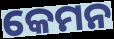
କେମନ